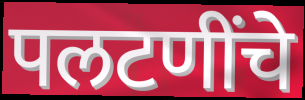
पलटणींचे